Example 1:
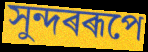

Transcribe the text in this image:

সুন্দৰৰূপে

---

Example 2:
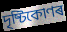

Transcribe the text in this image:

দৃষ্টিকোণৰ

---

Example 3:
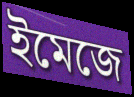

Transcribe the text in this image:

ইমেজে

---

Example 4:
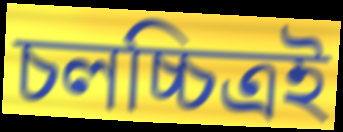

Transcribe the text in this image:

চলচ্চিত্ৰই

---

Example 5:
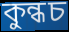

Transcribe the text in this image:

কুন্ধচ